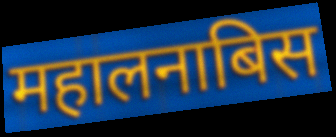
महालनाबिस